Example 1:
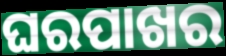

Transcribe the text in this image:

ଘରପାଖର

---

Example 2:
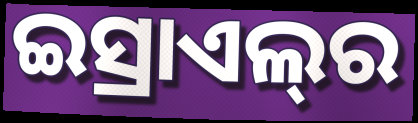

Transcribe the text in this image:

ଇସ୍ରାଏଲ୍‌ର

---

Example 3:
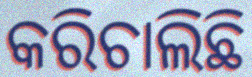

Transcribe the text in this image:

କରିଚାଲିଛି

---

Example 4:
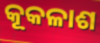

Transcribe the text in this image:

କୂକଳାଶ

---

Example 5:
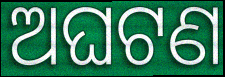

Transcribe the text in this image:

ଅଘଟଣ